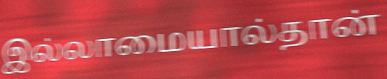
இல்லாமையால்தான்